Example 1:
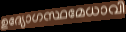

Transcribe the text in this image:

ഉദ്യോഗസ്ഥമേധാവി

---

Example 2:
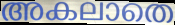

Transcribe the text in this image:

അകലാതെ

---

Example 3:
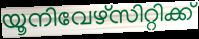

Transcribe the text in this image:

യൂനിവേഴ്സിറ്റിക്ക്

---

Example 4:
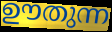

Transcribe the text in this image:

ഊതുന്ന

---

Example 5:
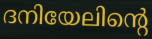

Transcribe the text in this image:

ദനിയേലിന്റെ